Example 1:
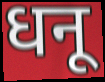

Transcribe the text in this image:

धनू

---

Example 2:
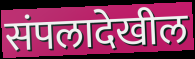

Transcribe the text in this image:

संपलादेखील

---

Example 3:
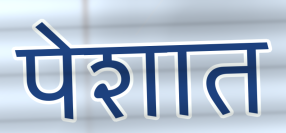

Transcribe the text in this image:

पेशात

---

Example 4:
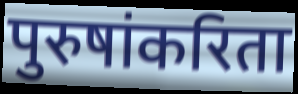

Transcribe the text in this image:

पुरुषांकरिता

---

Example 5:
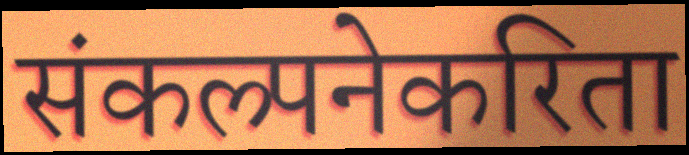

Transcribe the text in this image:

संकल्पनेकरिता